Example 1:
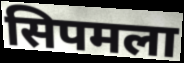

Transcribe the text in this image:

सिपमला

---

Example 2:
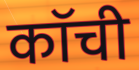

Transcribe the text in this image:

कॉची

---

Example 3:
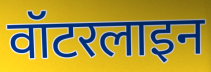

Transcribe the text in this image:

वॉटरलाइन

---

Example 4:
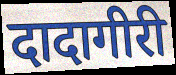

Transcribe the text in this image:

दादागीरी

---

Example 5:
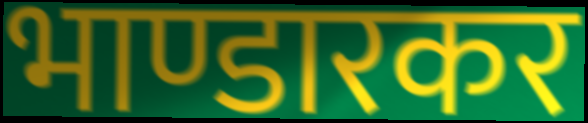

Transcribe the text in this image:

भाण्डारकर